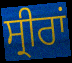
ਸ੍ਰੀਰਾਂ